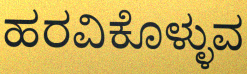
ಹರವಿಕೊಳ್ಳುವ